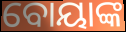
ବୋୟାଙ୍କ